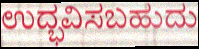
ಉದ್ಭವಿಸಬಹುದು